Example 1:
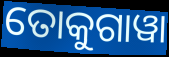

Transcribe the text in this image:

ତୋକୁଗାୱା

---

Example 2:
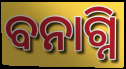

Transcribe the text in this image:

ବନାଗ୍ନି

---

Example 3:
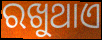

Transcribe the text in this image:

ରଖୁଥାଏ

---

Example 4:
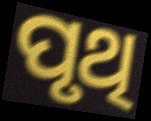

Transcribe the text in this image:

ପୃଥି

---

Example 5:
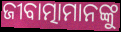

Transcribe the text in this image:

ଜୀବାତ୍ମାମାନଙ୍କୁ